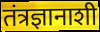
तंत्रज्ञानाशी